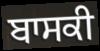
ਬਾਸਕੀ